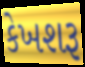
કેખશરૂ